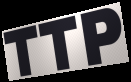
TTP